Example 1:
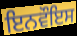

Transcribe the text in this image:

ਇਨਵੌਇਸ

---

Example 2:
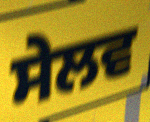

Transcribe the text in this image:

ਸੇਲਵ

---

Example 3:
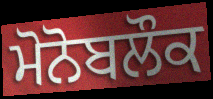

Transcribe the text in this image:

ਮੋਨੋਬਲੌਕ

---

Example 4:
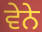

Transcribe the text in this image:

ਵੇਨੇ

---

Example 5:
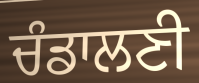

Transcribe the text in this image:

ਚੰਡਾਲਣੀ